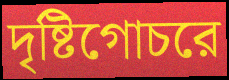
দৃষ্টিগোচরে